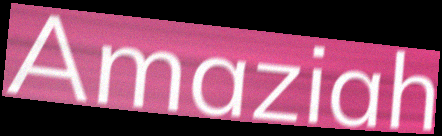
Amaziah